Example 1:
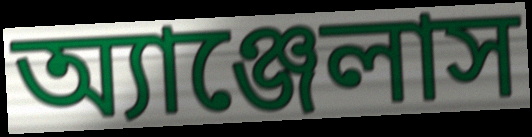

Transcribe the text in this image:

অ্যাঞ্জেলাস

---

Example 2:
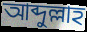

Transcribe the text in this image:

আব্দুল্লাহ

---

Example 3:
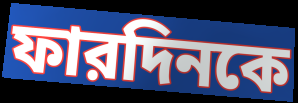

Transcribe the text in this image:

ফারদিনকে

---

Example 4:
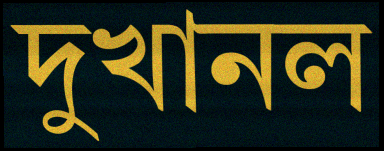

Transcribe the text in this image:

দুখানল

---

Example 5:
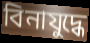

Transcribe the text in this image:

বিনাযুদ্ধে